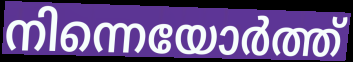
നിന്നെയോർത്ത്